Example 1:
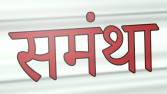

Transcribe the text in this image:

समंथा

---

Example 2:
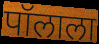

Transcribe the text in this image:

पॉलाला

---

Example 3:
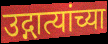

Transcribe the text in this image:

उद्गात्यांच्या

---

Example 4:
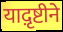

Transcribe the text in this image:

याद़ृष्टीने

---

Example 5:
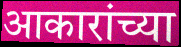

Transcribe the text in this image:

आकारांच्या